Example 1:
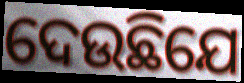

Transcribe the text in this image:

ଦେଉଛିଯେ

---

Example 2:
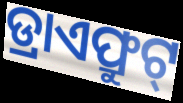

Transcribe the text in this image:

ଡ୍ରାଏଫ୍ରୁଟ୍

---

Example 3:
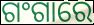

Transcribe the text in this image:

ଗଂଗାରେ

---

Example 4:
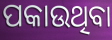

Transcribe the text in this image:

ପକାଉଥିବା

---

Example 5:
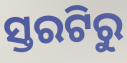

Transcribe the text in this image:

ସ୍ତରଟିରୁ